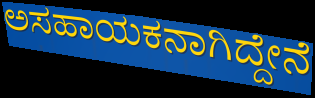
ಅಸಹಾಯಕನಾಗಿದ್ದೇನೆ